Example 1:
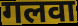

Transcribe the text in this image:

गलवा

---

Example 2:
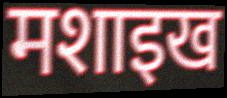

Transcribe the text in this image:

मशाइख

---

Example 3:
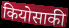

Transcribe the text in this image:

कियोसाकी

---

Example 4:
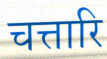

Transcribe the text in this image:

चत्तारि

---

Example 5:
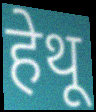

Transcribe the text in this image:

हेथू